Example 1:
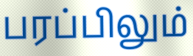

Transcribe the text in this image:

பரப்பிலும்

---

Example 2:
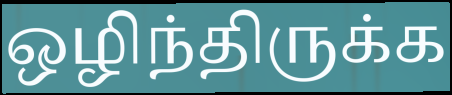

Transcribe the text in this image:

ஒழிந்திருக்க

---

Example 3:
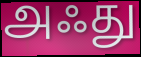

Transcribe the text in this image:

அஃது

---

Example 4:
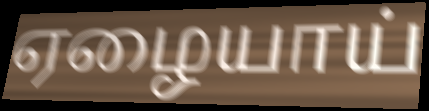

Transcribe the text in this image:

ஏழையாய்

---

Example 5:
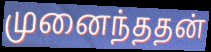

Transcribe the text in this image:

முனைந்ததன்